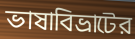
ভাষাবিভ্রাটের